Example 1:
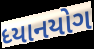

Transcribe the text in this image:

ધ્યાનયોગ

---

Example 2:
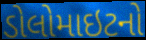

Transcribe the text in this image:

ડોલોમાઇટનો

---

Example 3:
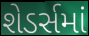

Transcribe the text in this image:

શેડર્સમાં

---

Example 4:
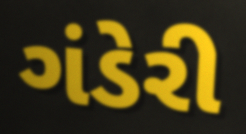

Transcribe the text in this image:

ગંડેરી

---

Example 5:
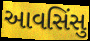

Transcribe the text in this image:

આવસિંસુ